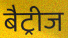
बैट्रीज